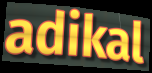
adikal